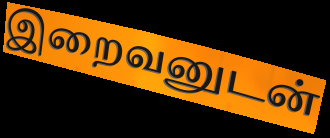
இறைவனுடன்